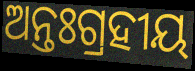
ଅନ୍ତଃଗ୍ରହୀୟ